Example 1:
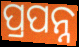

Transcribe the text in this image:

ପ୍ରପନ୍ନ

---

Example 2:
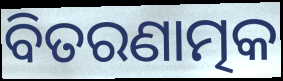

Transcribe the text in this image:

ବିତରଣାତ୍ମକ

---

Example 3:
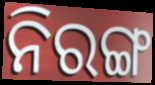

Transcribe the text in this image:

ନିରଙ୍ଗ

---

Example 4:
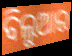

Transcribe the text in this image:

ବିଲୁଆର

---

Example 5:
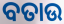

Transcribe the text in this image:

ବତାଉ